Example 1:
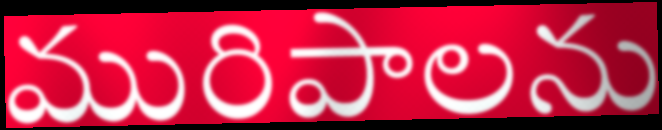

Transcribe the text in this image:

మురిపాలను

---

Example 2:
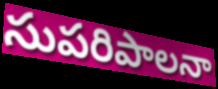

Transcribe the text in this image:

సుపరిపాలనా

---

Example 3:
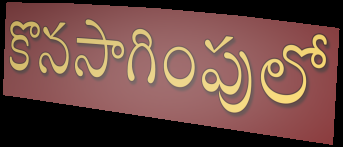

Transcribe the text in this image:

కొనసాగింపులో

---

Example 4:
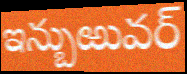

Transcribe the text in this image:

ఇన్బుఱువర్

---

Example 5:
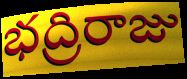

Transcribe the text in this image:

భద్రిరాజు